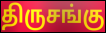
திருசங்கு